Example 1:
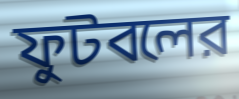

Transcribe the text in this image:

ফুটবলের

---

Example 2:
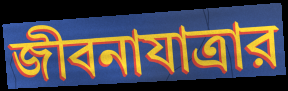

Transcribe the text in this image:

জীবনাযাত্রার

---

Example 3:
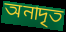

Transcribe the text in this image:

অনাদৃত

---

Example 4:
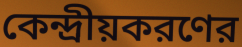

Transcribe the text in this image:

কেন্দ্রীয়করণের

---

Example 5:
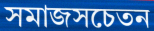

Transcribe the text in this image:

সমাজসচেতন